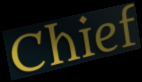
Chief